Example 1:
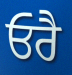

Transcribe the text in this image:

ਓਰੈ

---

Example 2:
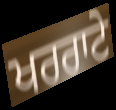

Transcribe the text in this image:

ਖਰਰਾਟੇ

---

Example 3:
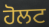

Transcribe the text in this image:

ਹੋਲਟ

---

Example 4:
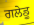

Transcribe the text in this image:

ਗਲੇਡੂ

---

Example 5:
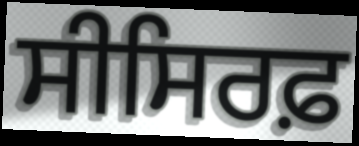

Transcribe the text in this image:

ਸੀਸਿਰਫ਼